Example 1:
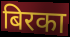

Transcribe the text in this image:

बिरका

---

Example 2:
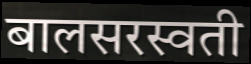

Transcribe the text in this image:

बालसरस्वती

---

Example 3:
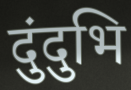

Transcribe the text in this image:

दुंदुभि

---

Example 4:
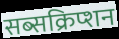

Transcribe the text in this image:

सब्सक्रिप्शन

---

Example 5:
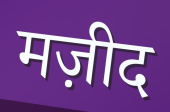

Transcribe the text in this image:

मज़ीद